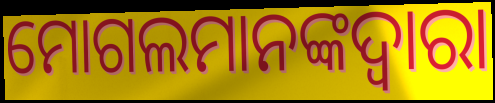
ମୋଗଲମାନଙ୍କଦ୍ୱାରା